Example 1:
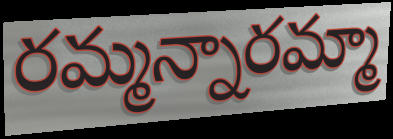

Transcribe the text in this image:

రమ్మన్నారమ్మా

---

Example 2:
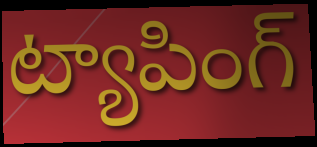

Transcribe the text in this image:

ట్యాపింగ్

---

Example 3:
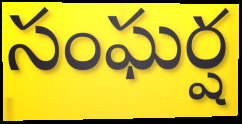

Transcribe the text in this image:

సంఘర్ష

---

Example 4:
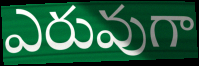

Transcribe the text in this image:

ఎరువుగా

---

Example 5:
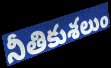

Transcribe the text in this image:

నీతికుశలుం